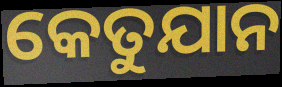
କେତୁଯାନ